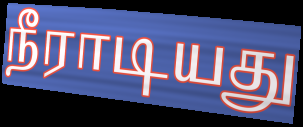
நீராடியது